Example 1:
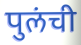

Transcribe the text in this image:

पुलंची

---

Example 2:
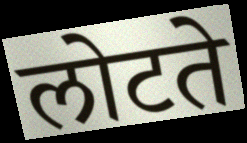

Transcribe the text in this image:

लोटते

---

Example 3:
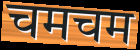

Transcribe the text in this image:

चमचम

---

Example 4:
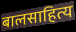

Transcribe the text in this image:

बालसाहित्य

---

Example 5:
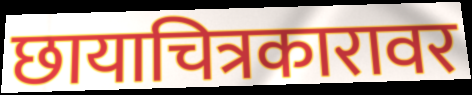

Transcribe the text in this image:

छायाचित्रकारावर